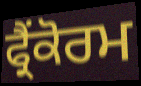
ਫ੍ਰੈਂਕੋਰਮ